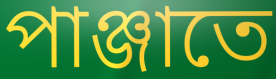
পাঞ্জাতে